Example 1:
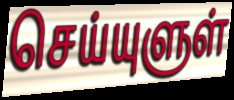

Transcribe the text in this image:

செய்யுளுள்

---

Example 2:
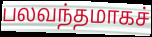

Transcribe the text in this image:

பலவந்தமாகச்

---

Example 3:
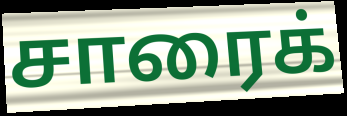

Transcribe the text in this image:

சாரைக்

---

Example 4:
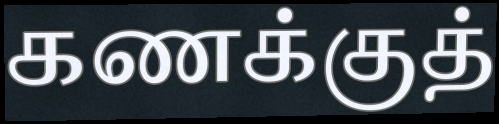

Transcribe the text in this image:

கணக்குத்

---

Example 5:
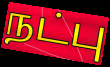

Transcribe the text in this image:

நட்பு